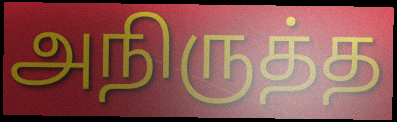
அநிருத்த